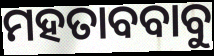
ମହତାବବାବୁ